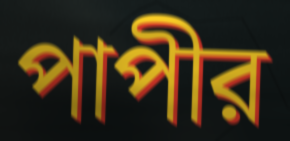
পাপীর